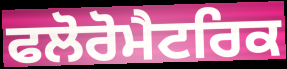
ਫਲੋਰੋਮੈਟਰਿਕ